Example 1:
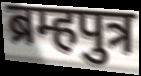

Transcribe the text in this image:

ब्रम्हपुत्र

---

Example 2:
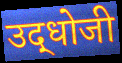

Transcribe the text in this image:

उद्धोजी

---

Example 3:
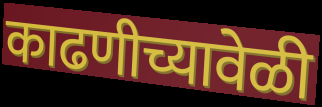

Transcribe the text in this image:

काढणीच्यावेळी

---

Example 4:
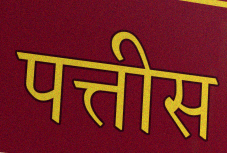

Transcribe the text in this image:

पत्तीस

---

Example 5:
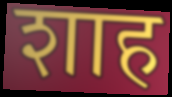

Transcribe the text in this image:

शाह